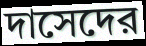
দাসেদের